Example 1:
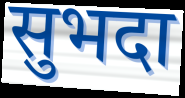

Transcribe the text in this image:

सुभदा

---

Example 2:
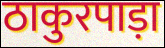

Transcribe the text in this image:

ठाकुरपाड़ा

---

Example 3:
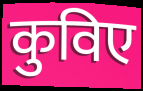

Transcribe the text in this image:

कुविए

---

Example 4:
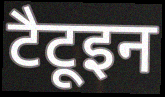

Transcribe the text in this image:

टैटूइन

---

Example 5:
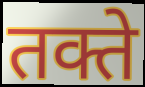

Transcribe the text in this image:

तक्ते